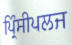
ਪ੍ਰਿੰਸੀਪਲਜ